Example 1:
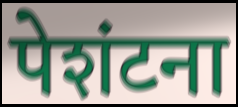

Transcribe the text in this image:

पेशंटना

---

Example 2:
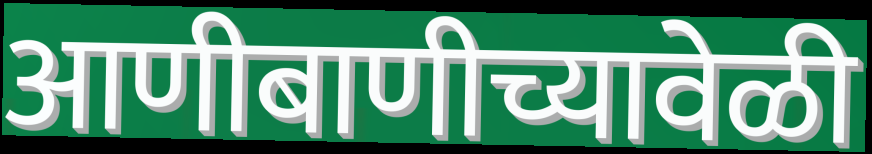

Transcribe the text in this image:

आणीबाणीच्यावेळी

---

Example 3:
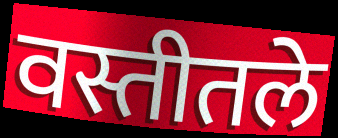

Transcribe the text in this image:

वस्तीतले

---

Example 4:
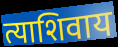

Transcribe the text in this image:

त्याशिवाय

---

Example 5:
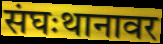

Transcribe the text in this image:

संघःथानावर